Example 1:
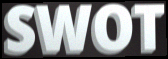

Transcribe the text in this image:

SWOT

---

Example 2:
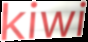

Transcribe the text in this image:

kiwi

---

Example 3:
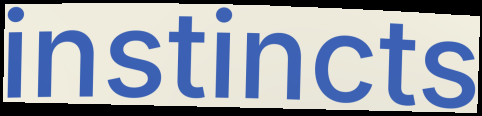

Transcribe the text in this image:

instincts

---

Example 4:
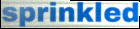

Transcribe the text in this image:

sprinkled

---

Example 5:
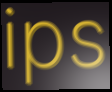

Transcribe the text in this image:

ips